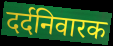
दर्दनिवारक